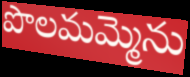
పొలమమ్మెను